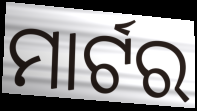
ମାର୍ଟର